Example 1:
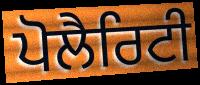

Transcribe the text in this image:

ਪੋਲੈਰਿਟੀ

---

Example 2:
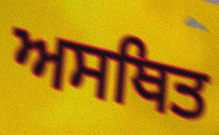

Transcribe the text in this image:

ਅਸਥਿਤ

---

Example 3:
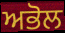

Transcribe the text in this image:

ਅਭੋਲ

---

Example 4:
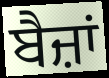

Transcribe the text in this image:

ਬੈਜ਼ਾਂ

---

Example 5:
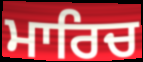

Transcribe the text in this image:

ਮਾਰਿਚ